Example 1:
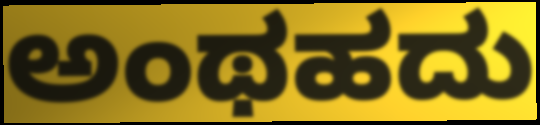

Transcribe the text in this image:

ಅಂಥಹದು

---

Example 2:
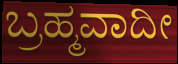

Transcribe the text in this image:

ಬ್ರಹ್ಮವಾದೀ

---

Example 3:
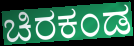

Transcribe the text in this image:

ಚಿರಕಂಡ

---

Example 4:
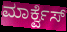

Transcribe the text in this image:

ಮಾರ್ಕ್ವೆಸ್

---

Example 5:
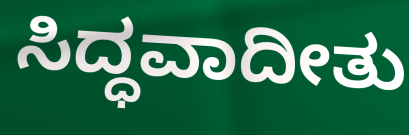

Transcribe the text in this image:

ಸಿದ್ಧವಾದೀತು